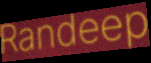
Randeep